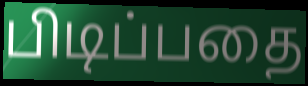
பிடிப்பதை